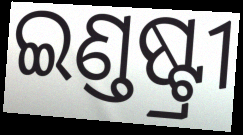
ଇଣ୍ଡଷ୍ଟ୍ରୀ